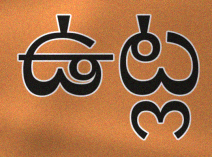
ఉట్ల